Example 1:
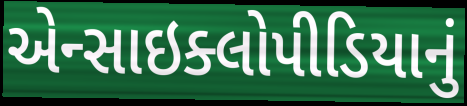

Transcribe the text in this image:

એન્સાઇક્લોપીડિયાનું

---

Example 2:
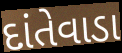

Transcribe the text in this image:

દાંતેવાડા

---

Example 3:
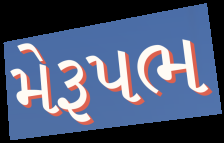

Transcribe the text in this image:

મેરૂપભ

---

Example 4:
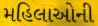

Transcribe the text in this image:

મહિલાઓની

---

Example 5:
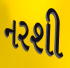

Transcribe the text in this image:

નરશી